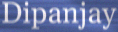
Dipanjay